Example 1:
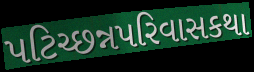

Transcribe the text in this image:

પટિચ્છન્નપરિવાસકથા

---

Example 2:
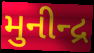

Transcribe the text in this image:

મુનીન્દ્ર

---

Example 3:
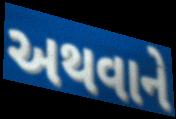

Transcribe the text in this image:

અથવાને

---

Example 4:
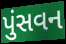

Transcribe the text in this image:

પુંસવન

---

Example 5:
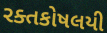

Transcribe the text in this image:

રક્તકોષલયી